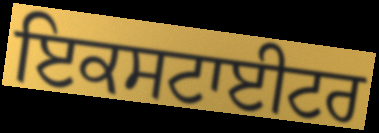
ਇਕਸਟਾਈਟਰ